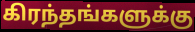
கிரந்தங்களுக்கு